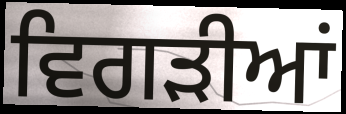
ਵਿਗੜੀਆਂ